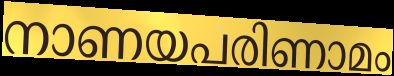
നാണയപരിണാമം